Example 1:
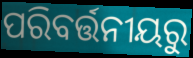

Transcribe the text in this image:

ପରିବର୍ତ୍ତନୀୟରୁ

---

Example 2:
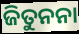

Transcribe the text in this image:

ଜିତୁନନା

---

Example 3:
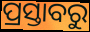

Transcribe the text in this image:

ପ୍ରସ୍ତାବରୁ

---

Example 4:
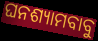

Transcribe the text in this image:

ଘନଶ୍ୟାମବାବୁ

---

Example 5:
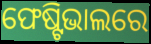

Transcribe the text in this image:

ଫେଷ୍ଟିଭାଲରେ